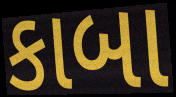
કાબા